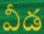
వీడ